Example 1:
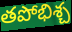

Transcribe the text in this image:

తపోభిశ్చ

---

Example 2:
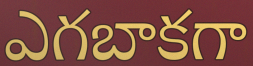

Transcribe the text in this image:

ఎగబాకగా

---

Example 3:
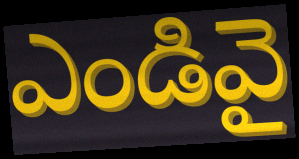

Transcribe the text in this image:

ఎండివై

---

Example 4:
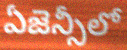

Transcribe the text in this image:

ఏజెన్సీలో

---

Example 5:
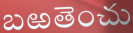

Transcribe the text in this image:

బఱతెంచు